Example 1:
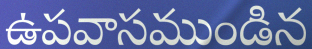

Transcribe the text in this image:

ఉపవాసముండిన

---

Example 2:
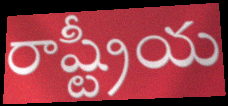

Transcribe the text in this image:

రాష్ట్రీయ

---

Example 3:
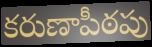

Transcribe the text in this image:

కరుణాపీఠపు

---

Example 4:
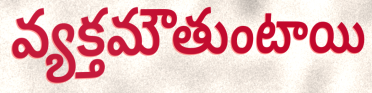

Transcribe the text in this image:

వ్యక్తమౌతుంటాయి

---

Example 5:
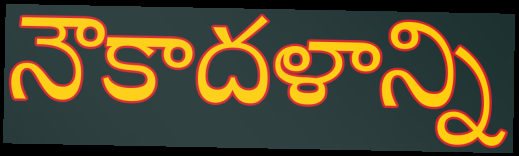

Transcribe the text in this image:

నౌకాదళాన్ని